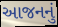
આજનનું